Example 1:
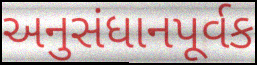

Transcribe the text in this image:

અનુસંધાનપૂર્વક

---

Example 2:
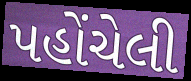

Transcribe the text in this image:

પહોંચેલી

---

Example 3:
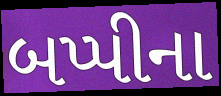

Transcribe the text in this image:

બપ્પીના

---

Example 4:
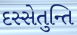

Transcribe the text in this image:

દસ્સેતુન્તિ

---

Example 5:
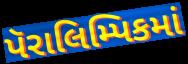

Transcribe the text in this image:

પૅરાલિમ્પિકમાં